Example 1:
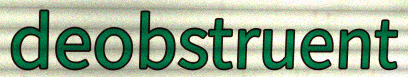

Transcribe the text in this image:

deobstruent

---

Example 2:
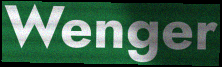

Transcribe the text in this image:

Wenger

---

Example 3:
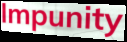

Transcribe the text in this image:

Impunity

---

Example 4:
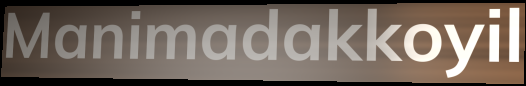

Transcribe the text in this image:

Manimadakkoyil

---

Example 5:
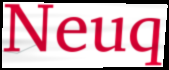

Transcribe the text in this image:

Neuq